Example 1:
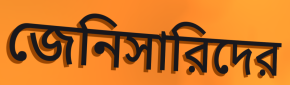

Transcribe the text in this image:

জেনিসারিদের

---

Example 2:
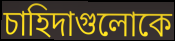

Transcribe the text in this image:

চাহিদাগুলোকে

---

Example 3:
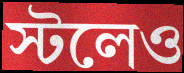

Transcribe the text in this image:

স্টলেও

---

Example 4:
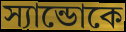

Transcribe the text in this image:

স্যান্ডোকে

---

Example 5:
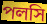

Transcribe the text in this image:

পলসি